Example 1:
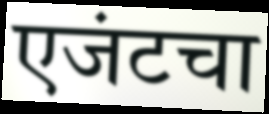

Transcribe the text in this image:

एजंटचा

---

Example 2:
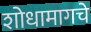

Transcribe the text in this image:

शोधामागचे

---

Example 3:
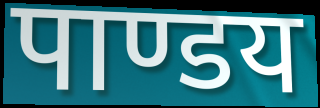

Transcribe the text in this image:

पाण्डय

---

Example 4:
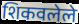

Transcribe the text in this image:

शिकवलेले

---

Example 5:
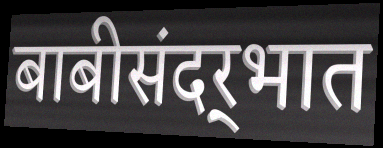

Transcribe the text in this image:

बाबीसंदर्भात